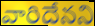
వారిదేనని